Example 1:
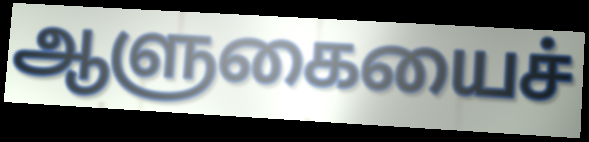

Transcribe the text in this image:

ஆளுகையைச்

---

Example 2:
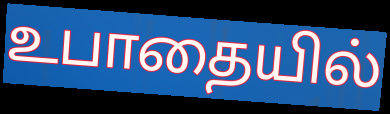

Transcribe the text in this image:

உபாதையில்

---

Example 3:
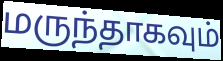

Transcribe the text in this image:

மருந்தாகவும்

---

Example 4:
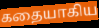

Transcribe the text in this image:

கதையாகிய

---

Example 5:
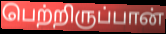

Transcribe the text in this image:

பெற்றிருப்பான்